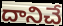
దానిచే